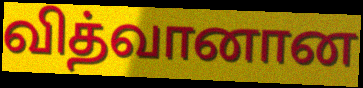
வித்வானான